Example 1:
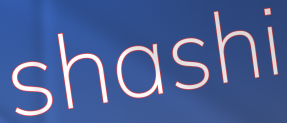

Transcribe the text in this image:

shashi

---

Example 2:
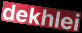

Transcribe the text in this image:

dekhlei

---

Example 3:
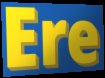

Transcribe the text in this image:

Ere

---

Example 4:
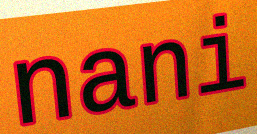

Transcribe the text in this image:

nani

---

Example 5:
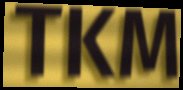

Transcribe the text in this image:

TKM